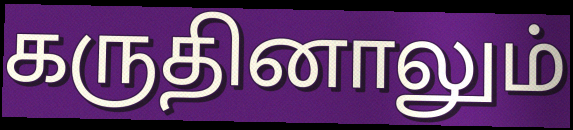
கருதினாலும்